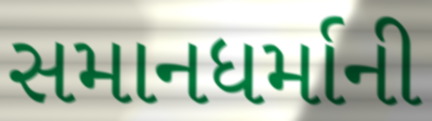
સમાનધર્માની